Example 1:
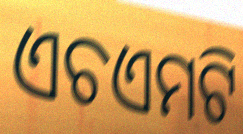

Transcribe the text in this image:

ଏଚଏମଟି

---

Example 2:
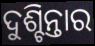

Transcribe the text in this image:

ଦୁଶ୍ଚିନ୍ତାର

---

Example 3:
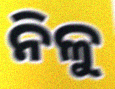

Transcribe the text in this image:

ନିଳୁ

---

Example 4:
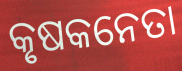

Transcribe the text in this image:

କୃଷକନେତା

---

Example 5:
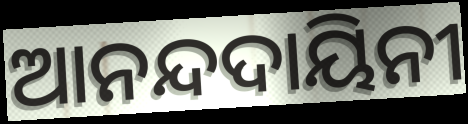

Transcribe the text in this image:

ଆନନ୍ଦଦାୟିନୀ